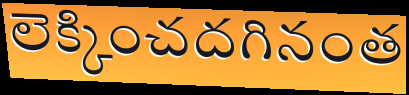
లెక్కించదగినంత